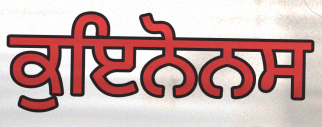
ਕੁਇਨੋਨਸ